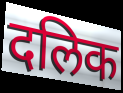
दलिक